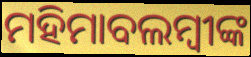
ମହିମାବଲମ୍ବୀଙ୍କ